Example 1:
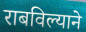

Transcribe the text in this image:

राबविल्याने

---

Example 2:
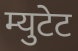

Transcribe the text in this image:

म्युटेट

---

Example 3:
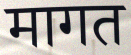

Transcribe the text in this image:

मागत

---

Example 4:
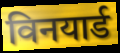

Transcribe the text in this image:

विनयार्ड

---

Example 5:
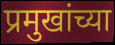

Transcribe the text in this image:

प्रमुखांच्या